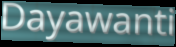
Dayawanti